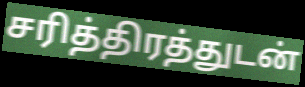
சரித்திரத்துடன்